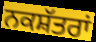
ਨਕਸ਼ੱਤਰਾਂ